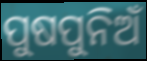
ପୁଷପୁନିଅଁ